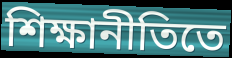
শিক্ষানীতিতে